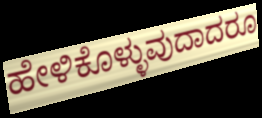
ಹೇಳಿಕೊಳ್ಳುವುದಾದರೂ